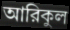
আরিকুল